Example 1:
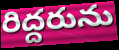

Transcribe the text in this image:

రిద్దరును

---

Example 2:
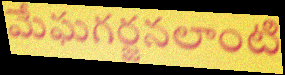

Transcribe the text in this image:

మేఘగర్జనలాంటి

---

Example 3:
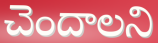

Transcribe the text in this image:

చెందాలని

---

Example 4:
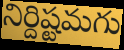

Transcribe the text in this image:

నిర్దిష్టమగు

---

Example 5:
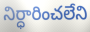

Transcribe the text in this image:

నిర్ధారించలేని